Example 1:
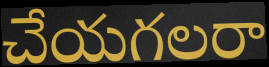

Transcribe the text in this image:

చేయగలరా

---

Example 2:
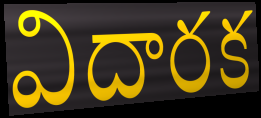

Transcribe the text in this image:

విదారక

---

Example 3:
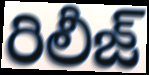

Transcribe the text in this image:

రిలీజ్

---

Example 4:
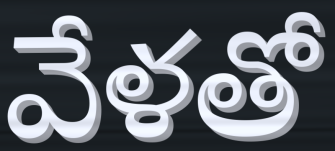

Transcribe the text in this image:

వేళతో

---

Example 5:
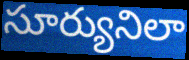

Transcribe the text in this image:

సూర్యునిలా